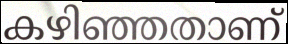
കഴിഞ്ഞതാണ്